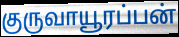
குருவாயூரப்பன்